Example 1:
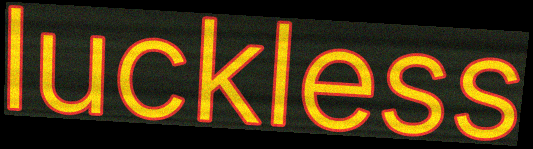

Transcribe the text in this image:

luckless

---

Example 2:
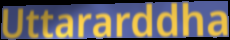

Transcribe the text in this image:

Uttararddha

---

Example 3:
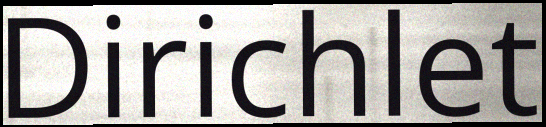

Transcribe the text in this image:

Dirichlet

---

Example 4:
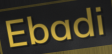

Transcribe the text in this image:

Ebadi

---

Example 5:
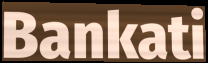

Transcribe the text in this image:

Bankati